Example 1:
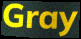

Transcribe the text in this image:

Gray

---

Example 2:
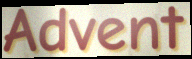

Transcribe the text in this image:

Advent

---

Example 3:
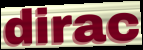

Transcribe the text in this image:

dirac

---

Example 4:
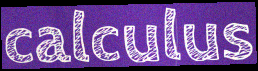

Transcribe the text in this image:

calculus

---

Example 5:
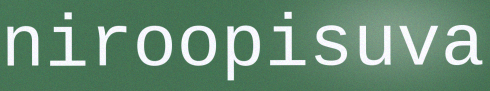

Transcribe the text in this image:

niroopisuva